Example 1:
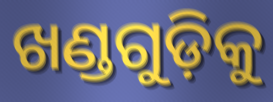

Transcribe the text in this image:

ଖଣ୍ଡଗୁଡ଼ିକୁ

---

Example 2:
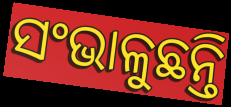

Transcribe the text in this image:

ସଂଭାଳୁଛନ୍ତି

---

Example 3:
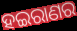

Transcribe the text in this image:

ହଇରାଣର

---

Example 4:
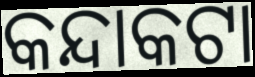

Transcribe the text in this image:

କନ୍ଦାକଟା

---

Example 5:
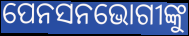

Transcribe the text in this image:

ପେନସନଭୋଗୀଙ୍କୁ